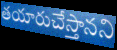
తయారుచేస్తానని